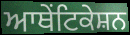
ਆਥੇਂਟਿਕੇਸ਼ਨ